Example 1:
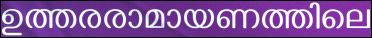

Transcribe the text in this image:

ഉത്തരരാമായണത്തിലെ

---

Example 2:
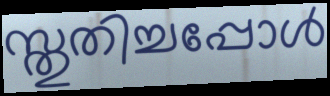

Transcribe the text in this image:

സ്തുതിച്ചപ്പോൾ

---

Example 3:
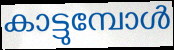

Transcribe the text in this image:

കാട്ടുമ്പോൾ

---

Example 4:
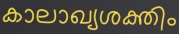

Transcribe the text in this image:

കാലാഖ്യശക്തിം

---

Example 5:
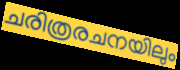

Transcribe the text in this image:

ചരിത്രരചനയിലും